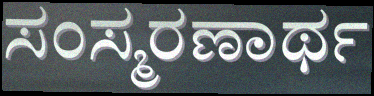
ಸಂಸ್ಮರಣಾರ್ಥ